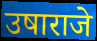
उषाराजे